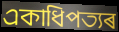
একাধিপত্যৰ